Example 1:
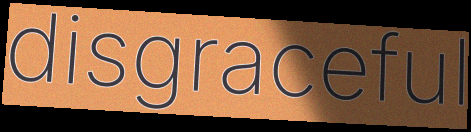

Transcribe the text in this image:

disgraceful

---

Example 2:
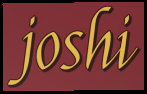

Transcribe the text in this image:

joshi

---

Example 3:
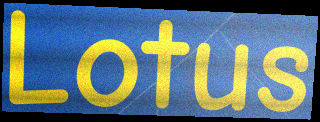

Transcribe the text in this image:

Lotus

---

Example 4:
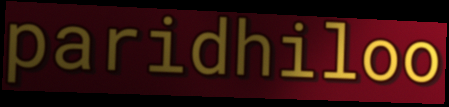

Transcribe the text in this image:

paridhiloo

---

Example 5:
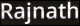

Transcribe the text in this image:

Rajnath